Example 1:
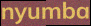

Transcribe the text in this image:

nyumba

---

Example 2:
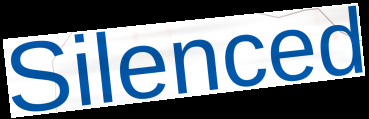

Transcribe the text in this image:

Silenced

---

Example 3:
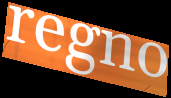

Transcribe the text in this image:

regno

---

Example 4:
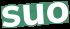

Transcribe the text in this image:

suo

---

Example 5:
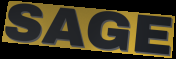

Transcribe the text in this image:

SAGE